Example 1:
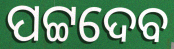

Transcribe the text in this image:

ପଟ୍ଟଦେବ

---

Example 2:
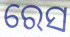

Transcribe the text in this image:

ରେସ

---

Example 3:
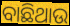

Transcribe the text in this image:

ବାଛିଥାଉ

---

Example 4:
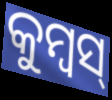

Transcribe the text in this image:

କୁମ୍ବସ୍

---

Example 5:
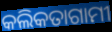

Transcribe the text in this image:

କଲିକତାଗାମୀ